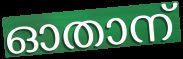
ഓതാന്